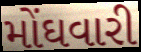
મોંઘવારી